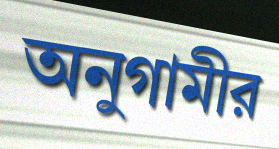
অনুগামীর